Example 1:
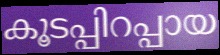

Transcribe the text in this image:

കൂടപ്പിറപ്പായ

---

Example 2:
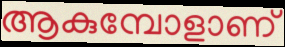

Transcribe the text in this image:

ആകുമ്പോളാണ്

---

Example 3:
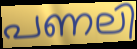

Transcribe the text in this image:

പണലി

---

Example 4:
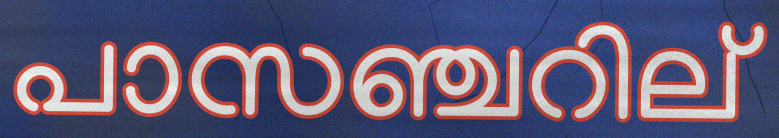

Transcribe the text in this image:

പാസഞ്ചറില്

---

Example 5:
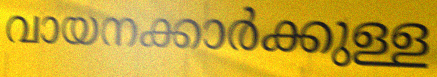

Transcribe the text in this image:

വായനക്കാർക്കുള്ള